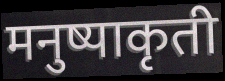
मनुष्याकृती